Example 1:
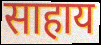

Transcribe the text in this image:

साहाय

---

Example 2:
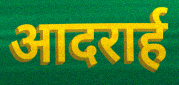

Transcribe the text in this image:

आदरार्ह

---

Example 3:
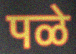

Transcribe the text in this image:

पळे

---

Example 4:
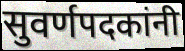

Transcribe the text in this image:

सुवर्णपदकांनी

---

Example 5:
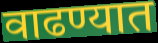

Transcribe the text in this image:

वाढण्यात